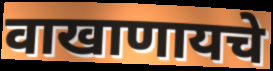
वाखाणायचे